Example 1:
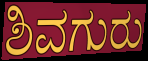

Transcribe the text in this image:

ಶಿವಗುರು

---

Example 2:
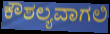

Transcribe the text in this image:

ಕೌಶಲ್ಯವಾಗಲಿ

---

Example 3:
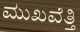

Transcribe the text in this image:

ಮುಖವೆತ್ತಿ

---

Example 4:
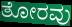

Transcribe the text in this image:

ತೋರವು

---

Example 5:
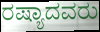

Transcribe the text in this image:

ರಷ್ಯಾದವರು